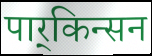
पार्किन्सन